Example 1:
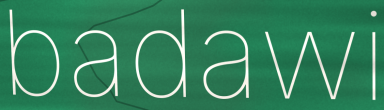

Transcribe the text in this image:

badawi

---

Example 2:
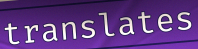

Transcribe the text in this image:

translates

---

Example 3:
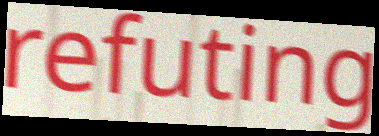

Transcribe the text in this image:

refuting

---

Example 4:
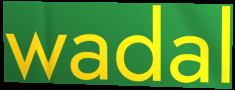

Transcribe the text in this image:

wadal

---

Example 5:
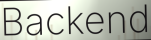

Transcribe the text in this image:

Backend